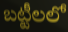
బట్టీలలో